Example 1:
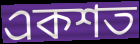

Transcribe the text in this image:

একশত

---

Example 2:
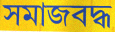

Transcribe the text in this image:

সমাজবদ্ধ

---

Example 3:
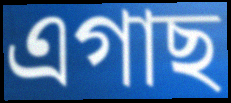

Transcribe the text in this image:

এগাছ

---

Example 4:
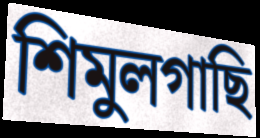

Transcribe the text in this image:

শিমুলগাছি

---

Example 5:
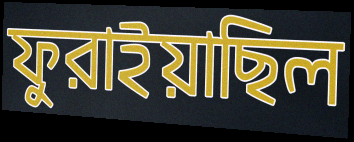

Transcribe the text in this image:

ফুরাইয়াছিল